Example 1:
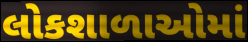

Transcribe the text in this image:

લોકશાળાઓમાં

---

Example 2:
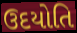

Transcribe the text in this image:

ઉદયોતિ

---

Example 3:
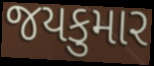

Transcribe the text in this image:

જયકુમાર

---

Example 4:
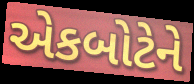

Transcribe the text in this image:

એકબોટેને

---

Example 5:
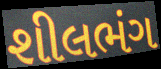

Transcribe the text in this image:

શીલભંગ